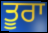
ਤੂਰਾ